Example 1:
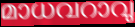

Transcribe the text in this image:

മാധവറാവു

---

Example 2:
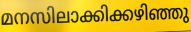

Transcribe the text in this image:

മനസിലാക്കിക്കഴിഞ്ഞു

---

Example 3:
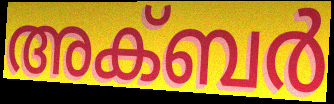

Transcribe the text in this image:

അക്ബർ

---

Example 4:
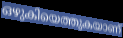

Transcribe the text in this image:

ഒഴുകിയെത്തുകയാണ്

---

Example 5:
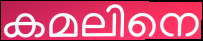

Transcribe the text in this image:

കമലിനെ